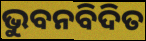
ଭୁବନବିଦିତ